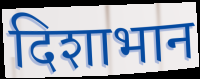
दिशाभान